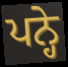
ਪਨ੍ਹੇ